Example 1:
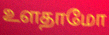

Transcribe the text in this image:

உளதாமோ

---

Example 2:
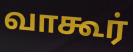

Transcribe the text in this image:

வாகூர்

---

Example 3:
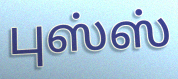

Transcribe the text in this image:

புஸ்ஸ்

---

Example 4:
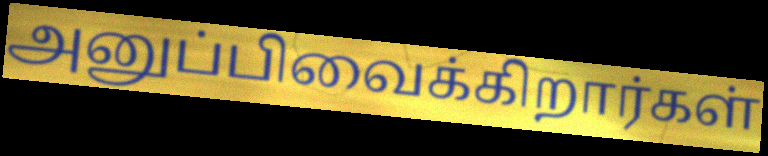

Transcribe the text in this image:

அனுப்பிவைக்கிறார்கள்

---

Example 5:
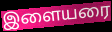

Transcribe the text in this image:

இளையரை